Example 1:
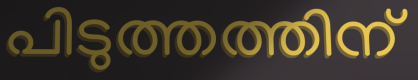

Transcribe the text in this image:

പിടുത്തത്തിന്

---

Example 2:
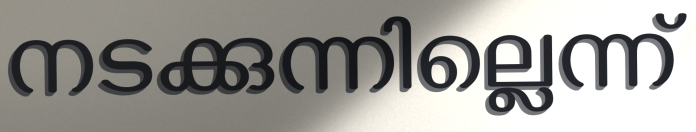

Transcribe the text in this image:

നടക്കുന്നില്ലെന്ന്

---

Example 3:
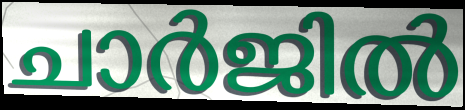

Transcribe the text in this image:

ചാർജിൽ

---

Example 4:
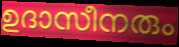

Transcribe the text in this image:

ഉദാസീനരും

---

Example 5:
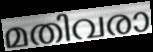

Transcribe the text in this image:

മതിവരാ